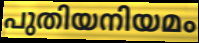
പുതിയനിയമം